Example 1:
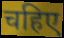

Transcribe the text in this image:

चहिए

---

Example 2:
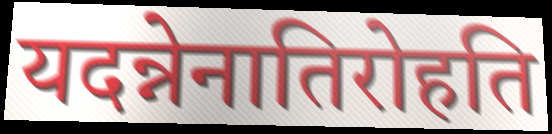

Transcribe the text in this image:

यदन्नेनातिरोहति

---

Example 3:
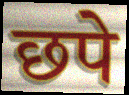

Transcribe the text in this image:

छपे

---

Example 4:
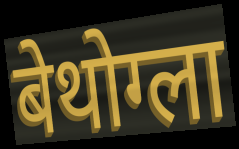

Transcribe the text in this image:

बेथोग्ला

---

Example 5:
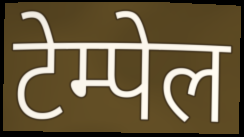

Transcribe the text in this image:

टेम्पेल